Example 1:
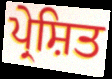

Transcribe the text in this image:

ਪ੍ਰੇਸ਼ਿਤ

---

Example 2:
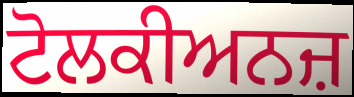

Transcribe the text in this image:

ਟੋਲਕੀਅਨਜ਼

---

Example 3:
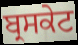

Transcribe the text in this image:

ਬ੍ਰਸਕੇਟ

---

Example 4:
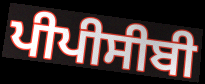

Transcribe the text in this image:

ਪੀਪੀਸੀਬੀ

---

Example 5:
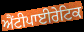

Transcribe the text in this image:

ਐਂਟੀਪਾਈਰੇਟਿਕ